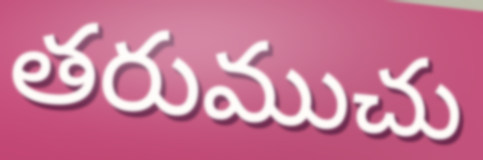
తరుముచు